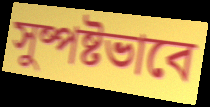
সুষ্পষ্টভাবে